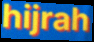
hijrah